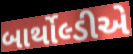
બાર્થોલ્ડીએ